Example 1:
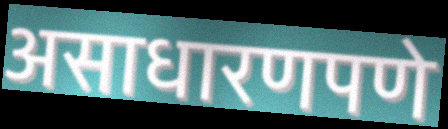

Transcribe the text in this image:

असाधारणपणे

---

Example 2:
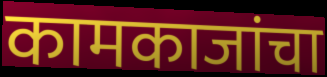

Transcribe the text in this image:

कामकाजांचा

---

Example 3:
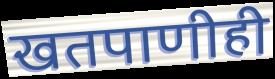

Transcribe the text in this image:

खतपाणीही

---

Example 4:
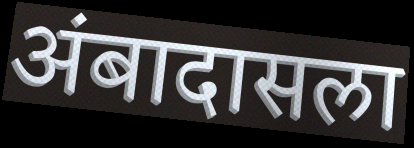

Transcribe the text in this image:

अंबादासला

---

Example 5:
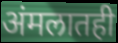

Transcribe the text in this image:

अंमलातही